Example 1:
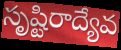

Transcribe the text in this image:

సృష్టిరాద్యేవ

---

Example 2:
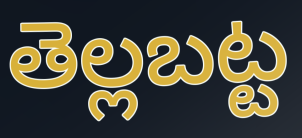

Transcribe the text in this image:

తెల్లబట్ట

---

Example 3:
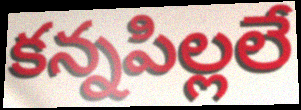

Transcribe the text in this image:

కన్నపిల్లలే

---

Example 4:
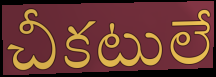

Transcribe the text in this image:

చీకటులే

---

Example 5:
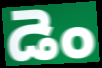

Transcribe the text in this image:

డెం